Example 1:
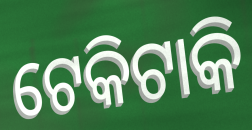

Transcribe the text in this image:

ଟେକିଟାକି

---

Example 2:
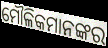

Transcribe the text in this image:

ମୌଳିକମାନଙ୍କର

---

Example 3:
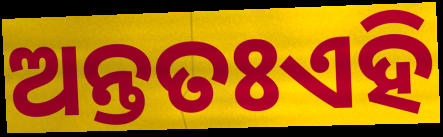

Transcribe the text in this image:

ଅନ୍ତତଃଏହି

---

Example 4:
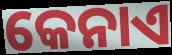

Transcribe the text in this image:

କେନାଏ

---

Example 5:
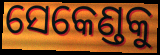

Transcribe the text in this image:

ସେକେଣ୍ଡକୁ